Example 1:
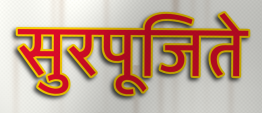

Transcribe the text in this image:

सुरपूजिते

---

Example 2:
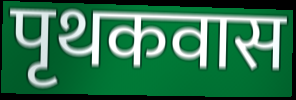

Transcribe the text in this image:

पृथकवास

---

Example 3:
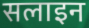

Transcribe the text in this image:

सलाइन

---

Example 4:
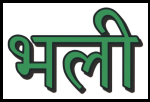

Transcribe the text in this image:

भली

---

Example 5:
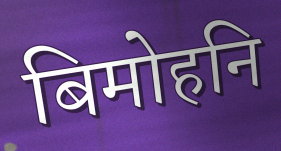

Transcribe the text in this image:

बिमोहनि